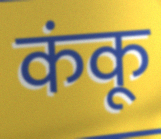
कंकू